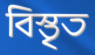
বিস্তৃত